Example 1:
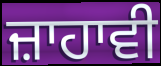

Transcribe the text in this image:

ਜ਼ਾਹਾਵੀ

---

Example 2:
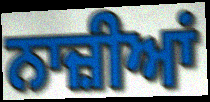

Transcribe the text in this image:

ਨਾਜ਼ੀਆਂ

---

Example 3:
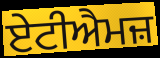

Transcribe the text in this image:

ਏਟੀਐਮਜ਼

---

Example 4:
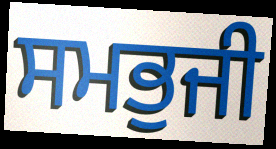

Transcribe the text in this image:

ਸਮਭੁਜੀ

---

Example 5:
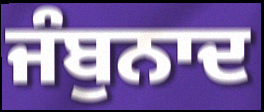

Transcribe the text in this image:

ਜੰਬੁਨਾਦ